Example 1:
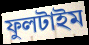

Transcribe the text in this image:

ফুলটাইম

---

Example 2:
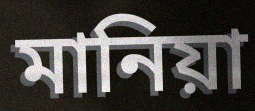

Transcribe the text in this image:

মানিয়া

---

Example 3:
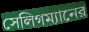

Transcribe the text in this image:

সেলিগম্যানের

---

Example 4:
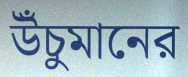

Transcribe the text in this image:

উঁচুমানের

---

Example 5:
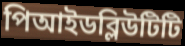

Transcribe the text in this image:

পিআইডব্লিউটিটি